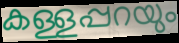
കള്ളപ്പറയും